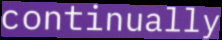
continually